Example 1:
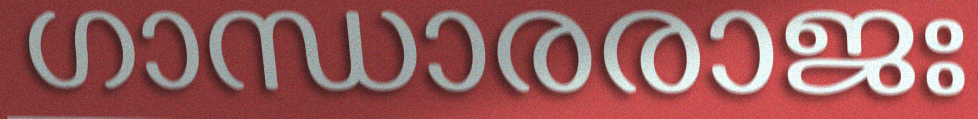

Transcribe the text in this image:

ഗാന്ധാരരാജഃ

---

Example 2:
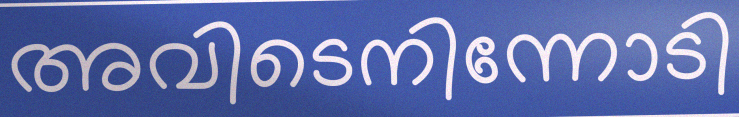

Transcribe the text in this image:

അവിടെനിന്നോടി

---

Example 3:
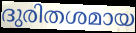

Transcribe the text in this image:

ദുരിതശമായ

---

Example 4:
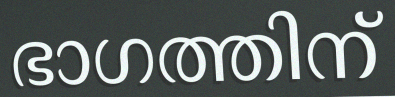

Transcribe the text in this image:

ഭാഗത്തിന്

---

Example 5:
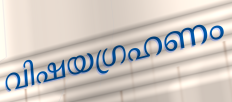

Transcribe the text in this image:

വിഷയഗ്രഹണം